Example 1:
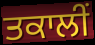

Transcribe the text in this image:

ਤਕਾਲੀਂ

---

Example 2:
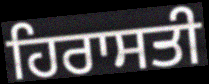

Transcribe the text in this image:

ਹਿਰਾਸਤੀ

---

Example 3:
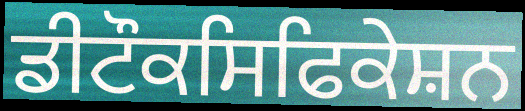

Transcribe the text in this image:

ਡੀਟੌਕਸਿਫਿਕੇਸ਼ਨ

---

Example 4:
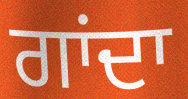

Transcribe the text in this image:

ਗਾਂਦਾ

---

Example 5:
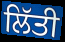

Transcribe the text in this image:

ਲਿੱਤੀ